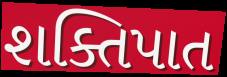
શક્તિપાત